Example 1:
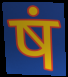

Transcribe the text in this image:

षं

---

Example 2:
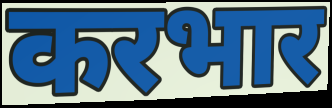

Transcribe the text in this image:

करभार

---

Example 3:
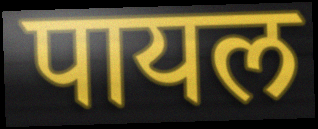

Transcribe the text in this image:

पायल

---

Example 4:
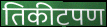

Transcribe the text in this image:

तिकीटपण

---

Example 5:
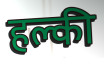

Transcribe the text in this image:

हल्की